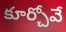
కూర్చోవే